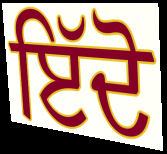
ਇੱਦੋ